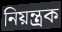
নিয়ন্ত্রক